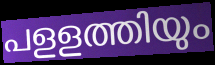
പളളത്തിയും